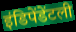
इंडिपेंडेंटली